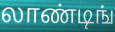
லாண்டிங்